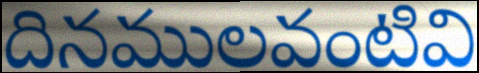
దినములవంటివి